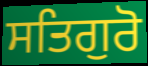
ਸਤਿਗੁਰੋ